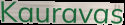
Kauravas